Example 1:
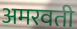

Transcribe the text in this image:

अमरवती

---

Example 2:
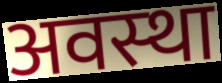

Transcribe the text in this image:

अवस्‍था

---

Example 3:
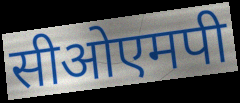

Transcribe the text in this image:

सीओएमपी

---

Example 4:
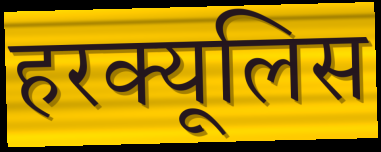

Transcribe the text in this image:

हरक्यूलिस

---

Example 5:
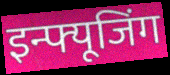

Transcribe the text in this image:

इन्फ्यूजिंग